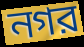
নগর